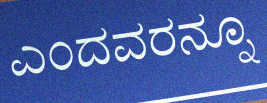
ಎಂದವರನ್ನೂ